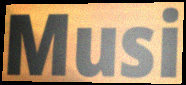
Musi